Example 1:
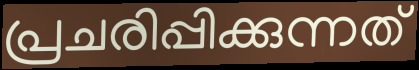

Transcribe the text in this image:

പ്രചരിപ്പിക്കുന്നത്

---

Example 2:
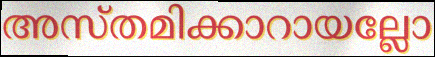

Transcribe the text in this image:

അസ്തമിക്കാറായല്ലോ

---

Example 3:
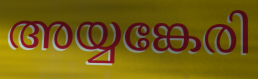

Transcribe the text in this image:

അയ്യങ്കേരി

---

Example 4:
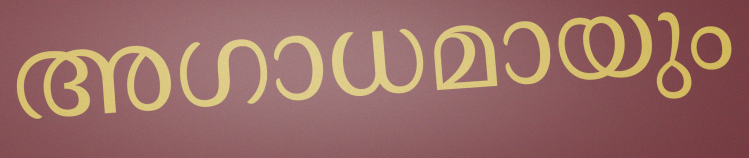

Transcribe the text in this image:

അഗാധമായും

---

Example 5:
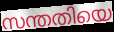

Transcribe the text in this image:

സന്തതിയെ